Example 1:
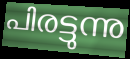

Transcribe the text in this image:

പിരട്ടുന്നു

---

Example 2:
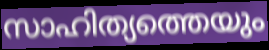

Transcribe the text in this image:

സാഹിത്യത്തെയും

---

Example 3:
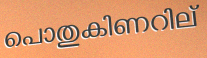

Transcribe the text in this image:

പൊതുകിണറില്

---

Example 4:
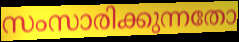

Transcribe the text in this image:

സംസാരിക്കുന്നതോ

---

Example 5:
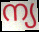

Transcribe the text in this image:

ന്യ